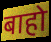
बाहो